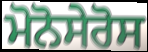
ਮੋਨੋਸੇਰੋਸ